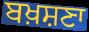
ਬਖ਼ਸ਼ਣਾ